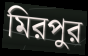
মিরপুর